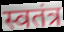
स्वतंत्र